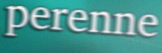
perenne